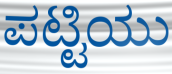
ಪಟ್ಟಿಯು